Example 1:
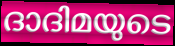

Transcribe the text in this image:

ദാദിമയുടെ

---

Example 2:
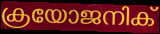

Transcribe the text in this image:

ക്രയോജനിക്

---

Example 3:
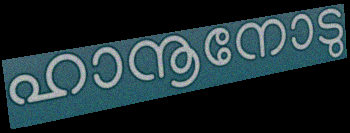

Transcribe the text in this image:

ഹാനൂനോടു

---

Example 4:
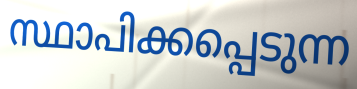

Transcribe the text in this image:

സ്ഥാപിക്കപ്പെടുന്ന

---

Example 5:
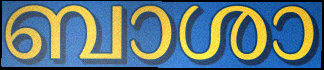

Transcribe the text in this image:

ബാശാ